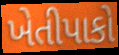
ખેતીપાકો